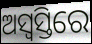
ଅସ୍ୱସ୍ତିରେ